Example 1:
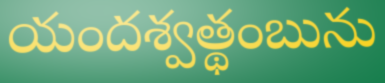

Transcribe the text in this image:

యందశ్వత్థంబును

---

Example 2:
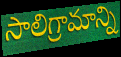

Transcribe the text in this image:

సాలిగ్రామాన్ని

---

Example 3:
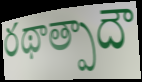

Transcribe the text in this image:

రథాత్పాదౌ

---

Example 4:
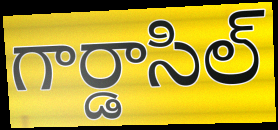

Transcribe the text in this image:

గార్డాసిల్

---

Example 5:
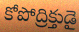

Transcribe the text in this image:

కోపోద్రిక్తుడై